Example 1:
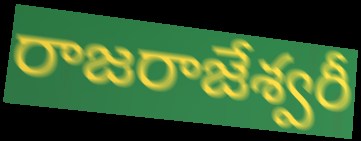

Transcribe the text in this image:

రాజరాజేశ్వరీ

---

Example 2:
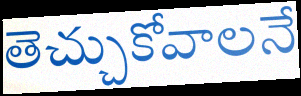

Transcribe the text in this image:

తెచ్చుకోవాలనే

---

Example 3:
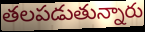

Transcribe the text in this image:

తలపడుతున్నారు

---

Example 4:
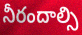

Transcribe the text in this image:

నీరందాల్సి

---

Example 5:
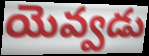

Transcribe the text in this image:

యెవ్వడు